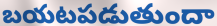
బయటపడుతుందా